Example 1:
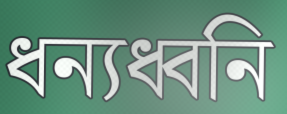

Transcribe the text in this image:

ধন্যধ্বনি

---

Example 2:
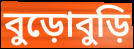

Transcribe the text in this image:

বুড়োবুড়ি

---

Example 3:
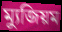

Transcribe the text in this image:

ম্যুজিয়ম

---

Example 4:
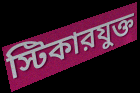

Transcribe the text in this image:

স্টিকারযুক্ত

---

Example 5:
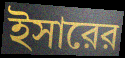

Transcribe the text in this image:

ইসারের